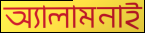
অ্যালামনাই